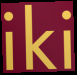
iki